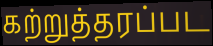
கற்றுத்தரப்பட